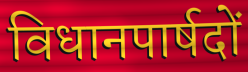
विधानपार्षदों